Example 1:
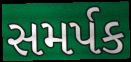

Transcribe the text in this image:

સમર્પક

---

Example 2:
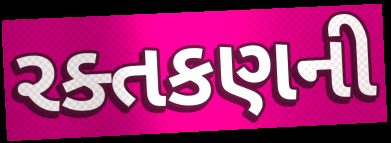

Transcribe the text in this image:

રક્તકણની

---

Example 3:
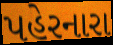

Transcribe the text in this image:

પહેરનારા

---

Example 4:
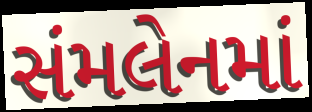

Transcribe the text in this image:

સંમલેનમાં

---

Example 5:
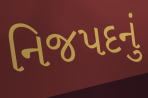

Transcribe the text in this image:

નિજપદનું